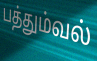
பத்தும்வல்